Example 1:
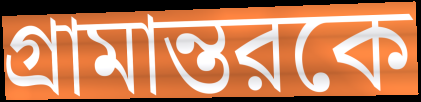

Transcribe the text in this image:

গ্রামান্তরকে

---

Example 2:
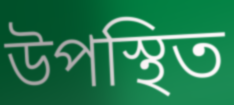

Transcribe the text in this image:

উপস্থিত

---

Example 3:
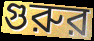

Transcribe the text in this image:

গুরুর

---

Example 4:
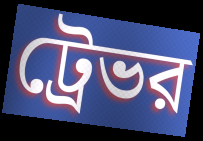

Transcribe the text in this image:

ট্রেভর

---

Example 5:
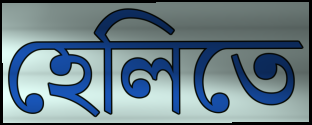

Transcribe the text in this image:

হেলিতে